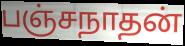
பஞ்சநாதன்